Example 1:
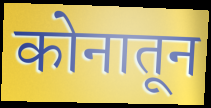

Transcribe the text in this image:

कोनातून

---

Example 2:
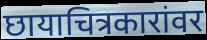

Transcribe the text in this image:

छायाचित्रकारांवर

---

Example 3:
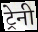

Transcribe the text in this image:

ट्रेनी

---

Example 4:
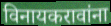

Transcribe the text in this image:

विनायकरावांना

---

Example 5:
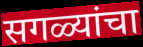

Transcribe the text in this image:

सगळ्यांचा